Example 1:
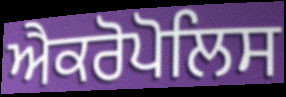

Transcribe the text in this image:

ਐਕਰੋਪੋਲਿਸ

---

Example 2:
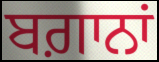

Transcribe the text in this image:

ਬਗ਼ਾਨਾਂ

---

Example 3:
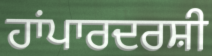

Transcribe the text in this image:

ਹਾਂਪਾਰਦਰਸ਼ੀ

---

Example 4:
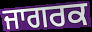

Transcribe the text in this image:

ਜਾਗਰਕ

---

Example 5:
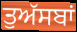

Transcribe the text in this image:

ਤੁਅੱਸਬਾਂ